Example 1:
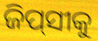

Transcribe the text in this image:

ଜିପ୍‌ସୀକୁ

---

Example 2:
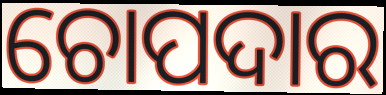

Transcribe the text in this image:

ଚୋପଦାର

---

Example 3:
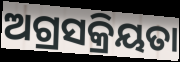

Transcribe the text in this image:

ଅଗ୍ରସକ୍ରିୟତା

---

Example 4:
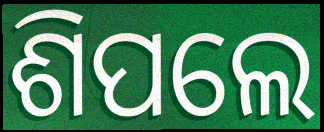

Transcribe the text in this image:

ଶିପଲେ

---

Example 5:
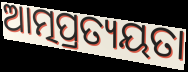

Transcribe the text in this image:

ଆତ୍ମପ୍ରତ୍ୟୟତା